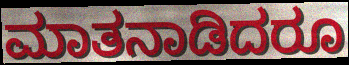
ಮಾತನಾಡಿದರೂ